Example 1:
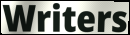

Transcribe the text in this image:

Writers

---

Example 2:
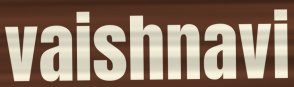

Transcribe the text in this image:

vaishnavi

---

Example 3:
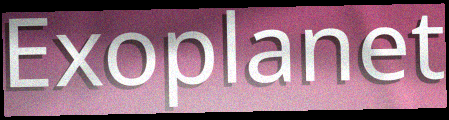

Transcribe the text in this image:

Exoplanet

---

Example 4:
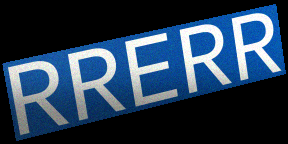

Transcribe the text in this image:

RRERR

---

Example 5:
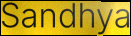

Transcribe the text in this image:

Sandhya